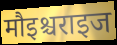
मौइश्चराइज